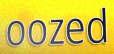
oozed